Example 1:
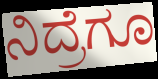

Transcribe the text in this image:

ನಿದ್ರೆಗೂ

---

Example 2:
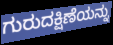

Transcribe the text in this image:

ಗುರುದಕ್ಷಿಣೆಯನ್ನು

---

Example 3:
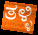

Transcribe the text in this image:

ತಳ್ಳಿ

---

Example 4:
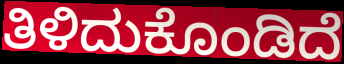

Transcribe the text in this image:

ತಿಳಿದುಕೊಂಡಿದೆ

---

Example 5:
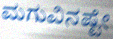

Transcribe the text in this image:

ಮಗುವಿನಷ್ಟೇ